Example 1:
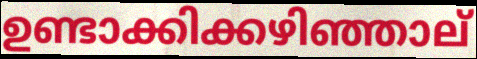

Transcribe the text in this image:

ഉണ്ടാക്കിക്കഴിഞ്ഞാല്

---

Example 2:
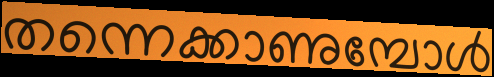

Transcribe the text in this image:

തന്നെക്കാണുമ്പോൾ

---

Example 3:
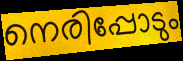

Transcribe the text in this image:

നെരിപ്പോടും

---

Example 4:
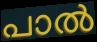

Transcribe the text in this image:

പാൽ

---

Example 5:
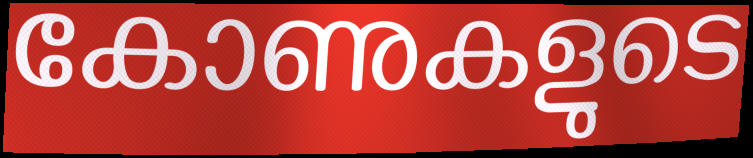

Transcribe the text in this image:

കോണുകളുടെ